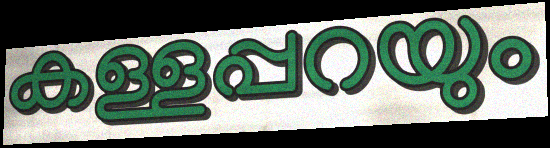
കള്ളപ്പറയും